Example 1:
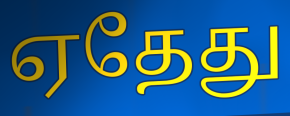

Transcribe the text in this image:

ஏதேது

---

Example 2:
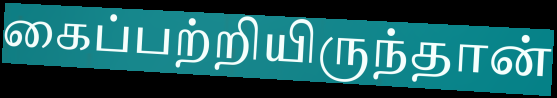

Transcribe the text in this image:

கைப்பற்றியிருந்தான்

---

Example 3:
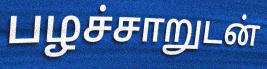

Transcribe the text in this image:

பழச்சாறுடன்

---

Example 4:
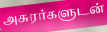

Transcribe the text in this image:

அசுரர்களுடன்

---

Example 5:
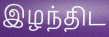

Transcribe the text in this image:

இழந்திட